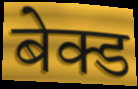
बेक्ड